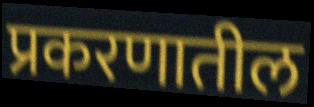
प्रकरणातील